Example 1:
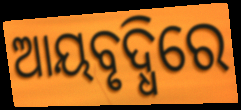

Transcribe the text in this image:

ଆୟବୃଦ୍ଧିରେ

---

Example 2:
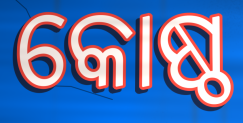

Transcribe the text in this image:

କୋଷ୍ଠ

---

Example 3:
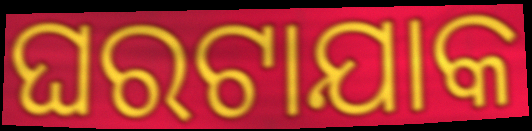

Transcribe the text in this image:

ଘରଟାଯାକ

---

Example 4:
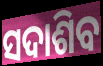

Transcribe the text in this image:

ସଦାଶିବ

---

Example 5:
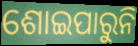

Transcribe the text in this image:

ଶୋଇପାରୁନି